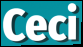
Ceci